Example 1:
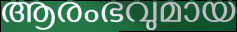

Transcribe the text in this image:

ആരംഭവുമായ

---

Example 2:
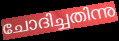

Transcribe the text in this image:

ചോദിച്ചതിന്നു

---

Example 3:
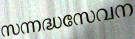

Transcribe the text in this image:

സന്നദ്ധസേവന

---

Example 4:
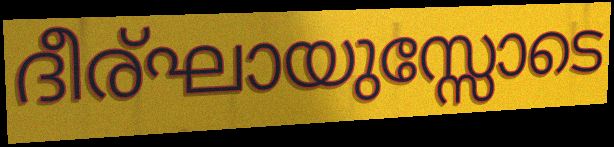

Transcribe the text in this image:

ദീര്ഘായുസ്സോടെ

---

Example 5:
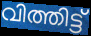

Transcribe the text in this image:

വിത്തിട്ട്